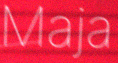
Maja